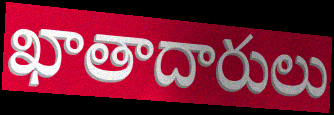
ఖాతాదారులు